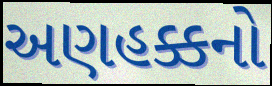
અણહક્કનો